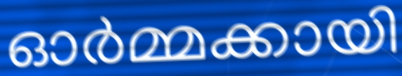
ഓർമ്മക്കായി